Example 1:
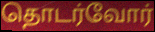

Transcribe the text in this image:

தொடர்வோர்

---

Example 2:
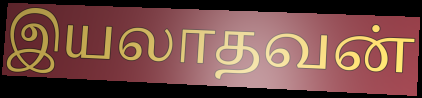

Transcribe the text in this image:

இயலாதவன்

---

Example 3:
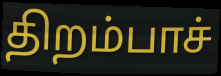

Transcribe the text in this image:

திறம்பாச்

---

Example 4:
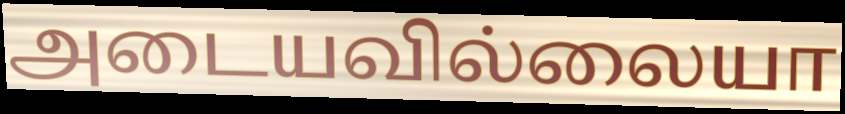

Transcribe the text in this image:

அடையவில்லையா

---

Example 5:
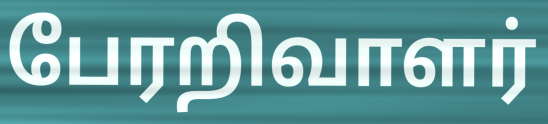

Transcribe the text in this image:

பேரறிவாளர்